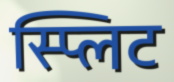
स्प्लिट